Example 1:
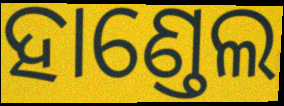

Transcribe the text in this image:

ହାଣ୍ଡେଲ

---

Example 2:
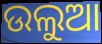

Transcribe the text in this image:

ଉଲୁଆ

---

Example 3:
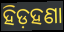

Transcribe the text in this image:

ହିଡ଼ହଣା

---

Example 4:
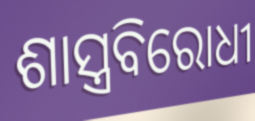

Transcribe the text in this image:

ଶାସ୍ତ୍ରବିରୋଧୀ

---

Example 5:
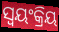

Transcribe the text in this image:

ସ୍ୱୟଂକ୍ରିୟ